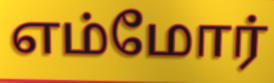
எம்மோர்